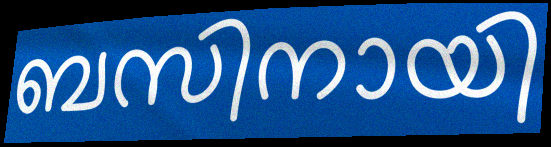
ബസിനായി